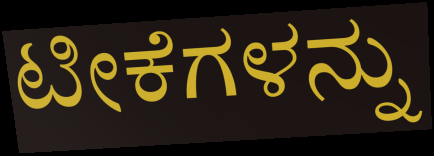
ಟೀಕೆಗಳನ್ನು